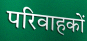
परिवाहकों